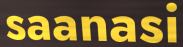
saanasi